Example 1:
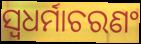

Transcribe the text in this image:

ସ୍ୱଧର୍ମାଚରଣଂ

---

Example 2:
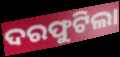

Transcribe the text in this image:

ଦରଫୁଟିଲା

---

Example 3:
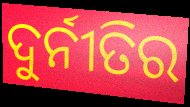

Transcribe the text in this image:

ଦୁର୍ନୀତିର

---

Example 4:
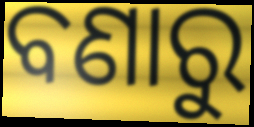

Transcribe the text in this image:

ବଣାରୁ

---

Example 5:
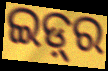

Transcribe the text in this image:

ଇଡ଼୍‍ର